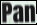
Pan